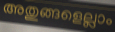
അതുങ്ങളെല്ലാം